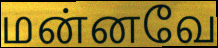
மன்னவே